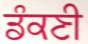
ਡੰਕਣੀ